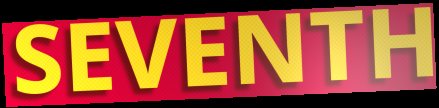
SEVENTH